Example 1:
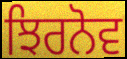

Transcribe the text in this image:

ਝਿਰਨੋਵ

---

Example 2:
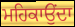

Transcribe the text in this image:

ਮਹਿਕਾਉਂਦਾ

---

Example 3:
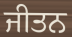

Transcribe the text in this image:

ਜੀਤਨ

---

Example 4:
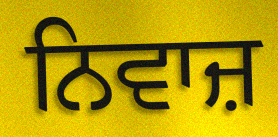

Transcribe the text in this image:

ਨਿਵਾਜ਼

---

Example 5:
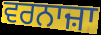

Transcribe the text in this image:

ਵਰਨਾਜ਼ਾ